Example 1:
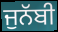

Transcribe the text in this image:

ਜੁਨੱਬੀ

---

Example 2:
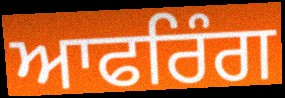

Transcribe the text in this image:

ਆਫਰਿੰਗ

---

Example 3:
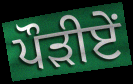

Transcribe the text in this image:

ਪੌੜੀਏਂ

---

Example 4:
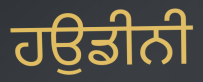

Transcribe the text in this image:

ਹਉਡੀਨੀ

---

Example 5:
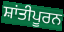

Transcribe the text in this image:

ਸ਼ਾਂਤੀਪੂਰਨ